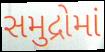
સમુદ્રોમાં